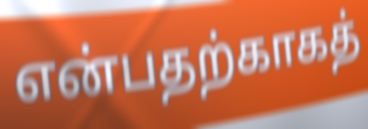
என்பதற்காகத்